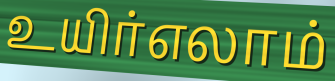
உயிர்எலாம்